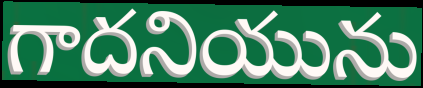
గాదనియును